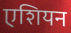
एशियन